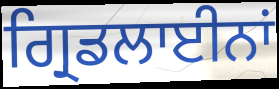
ਗ੍ਰਿਡਲਾਈਨਾਂ